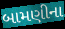
બામણીના